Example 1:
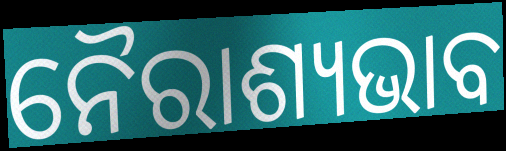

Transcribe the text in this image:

ନୈରାଶ୍ୟଭାବ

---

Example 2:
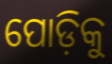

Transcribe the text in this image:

ପୋଡ଼ିକୁ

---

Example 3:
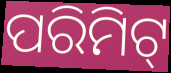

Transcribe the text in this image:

ପରିମିଟ୍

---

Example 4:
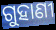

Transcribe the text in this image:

ଗୁହାଣୀ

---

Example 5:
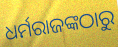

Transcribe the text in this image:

ଧର୍ମରାଜଙ୍କଠାରୁ